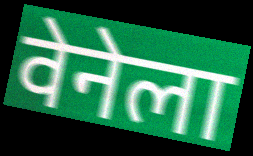
वेनेला